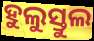
ହୁଲୁସ୍ତୁଲ